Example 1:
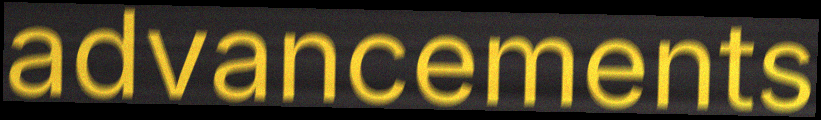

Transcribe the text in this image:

advancements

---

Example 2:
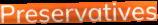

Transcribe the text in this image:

Preservatives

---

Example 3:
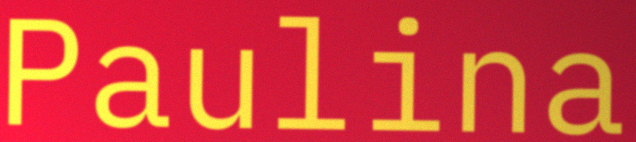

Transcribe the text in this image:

Paulina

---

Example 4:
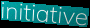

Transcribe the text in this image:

initiative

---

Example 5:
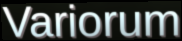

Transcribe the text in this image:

Variorum